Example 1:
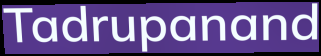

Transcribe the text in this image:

Tadrupanand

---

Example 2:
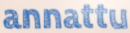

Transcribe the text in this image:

annattu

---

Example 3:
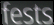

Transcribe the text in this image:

fests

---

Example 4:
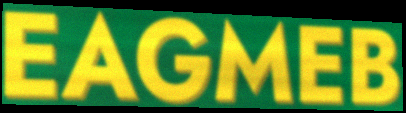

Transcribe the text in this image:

EAGMEB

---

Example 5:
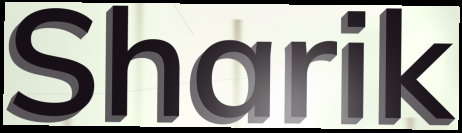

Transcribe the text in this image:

Sharik